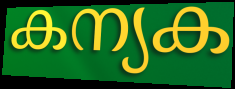
കന്യക